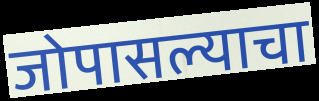
जोपासल्याचा